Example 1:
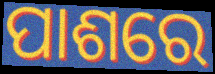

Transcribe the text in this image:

ପାଶରେ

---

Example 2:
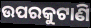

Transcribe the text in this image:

ଉପରକୁଟାଣି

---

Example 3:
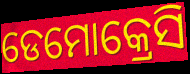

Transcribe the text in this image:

ଡେମୋକ୍ରେସି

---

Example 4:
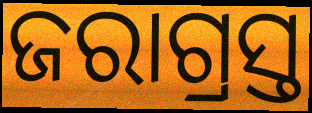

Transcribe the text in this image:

ଜରାଗ୍ରସ୍ତ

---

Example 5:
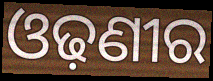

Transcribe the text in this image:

ଓଢ଼ଣୀର